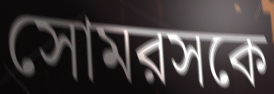
সোমরসকে